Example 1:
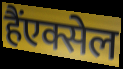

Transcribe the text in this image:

हैंएक्सेल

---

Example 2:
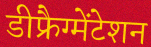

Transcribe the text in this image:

डीफ्रैग्मेंटेशन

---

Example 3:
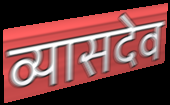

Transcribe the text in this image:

व्यासदेव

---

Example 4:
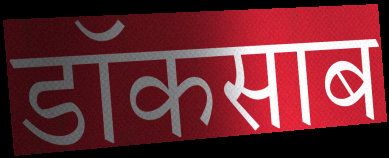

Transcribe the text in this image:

डॉकसाब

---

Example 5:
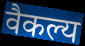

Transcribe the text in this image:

वैकल्य